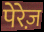
पेरेज़